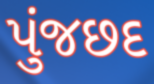
પુંજછદ